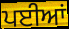
ਪਈਆਂ